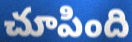
చూపింది